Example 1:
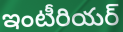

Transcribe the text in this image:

ఇంటీరియర్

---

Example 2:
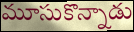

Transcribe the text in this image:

మూసుకొన్నాడు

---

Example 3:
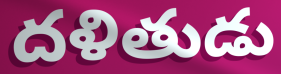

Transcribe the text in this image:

దళితుడు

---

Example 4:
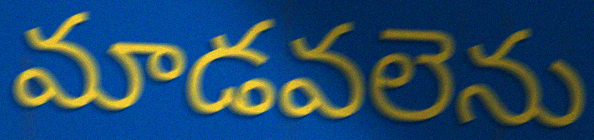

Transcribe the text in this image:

మాడవలెను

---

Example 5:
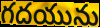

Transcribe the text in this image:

గదయును